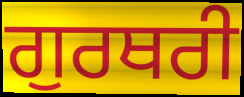
ਗੁਰਥਰੀ